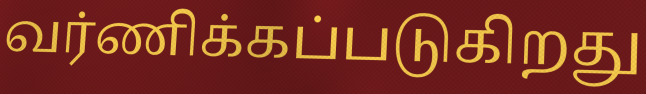
வர்ணிக்கப்படுகிறது